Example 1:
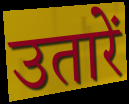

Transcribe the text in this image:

उतारें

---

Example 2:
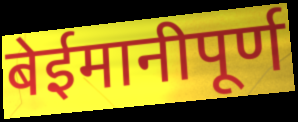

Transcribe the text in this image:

बेईमानीपूर्ण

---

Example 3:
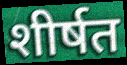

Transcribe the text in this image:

शीर्षत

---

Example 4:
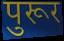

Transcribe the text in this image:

पुरूर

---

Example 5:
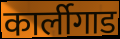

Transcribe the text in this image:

कार्लीगाड